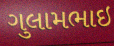
ગુલામભાઇ